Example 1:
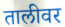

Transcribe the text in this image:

तालीवर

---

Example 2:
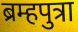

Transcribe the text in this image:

ब्रम्हपुत्रा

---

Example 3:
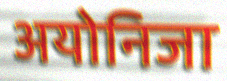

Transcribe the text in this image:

अयोनिजा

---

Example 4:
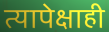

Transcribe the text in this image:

त्यापेक्षाही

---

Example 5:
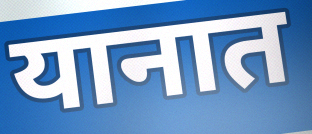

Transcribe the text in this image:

यानात